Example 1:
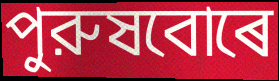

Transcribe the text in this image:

পুৰুষবোৰে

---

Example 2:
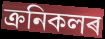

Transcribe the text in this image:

ক্ৰনিকলৰ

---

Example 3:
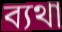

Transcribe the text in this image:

ব্যথা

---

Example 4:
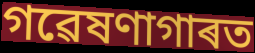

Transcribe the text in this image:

গৱেষণাগাৰত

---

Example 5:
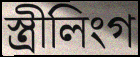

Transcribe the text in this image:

স্ত্ৰীলিংগ